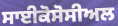
ਸਾਈਕੋਸੋਸੀਅਲ